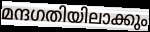
മന്ദഗതിയിലാക്കും